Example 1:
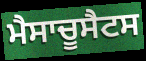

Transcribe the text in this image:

ਮੈਸਾਚੂਸੈਟਸ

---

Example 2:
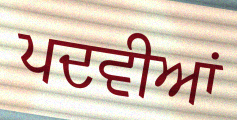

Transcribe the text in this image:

ਪਦਵੀਆਂ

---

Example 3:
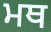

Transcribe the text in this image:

ਮਥ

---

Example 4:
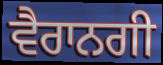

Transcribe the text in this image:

ਵੈਰਾਨਗੀ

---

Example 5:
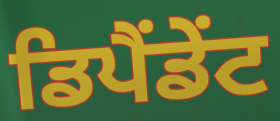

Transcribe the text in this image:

ਡਿਪੈਂਡੇਂਟ